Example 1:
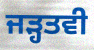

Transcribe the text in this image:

ਜੜ੍ਹਤਵੀ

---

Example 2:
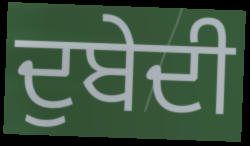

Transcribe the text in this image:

ਦੁਬੇਦੀ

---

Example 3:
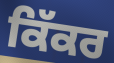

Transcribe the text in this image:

ਕਿੱਕਰ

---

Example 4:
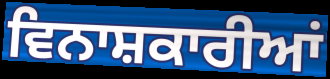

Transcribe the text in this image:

ਵਿਨਾਸ਼ਕਾਰੀਆਂ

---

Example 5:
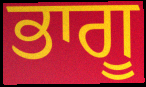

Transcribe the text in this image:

ਭਾਗੂ